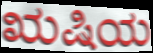
ಋಷಿಯ